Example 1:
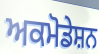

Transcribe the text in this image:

ਅਕਮੋਡੇਸ਼ਨ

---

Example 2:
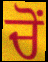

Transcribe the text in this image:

ਚੋਂ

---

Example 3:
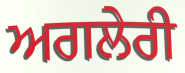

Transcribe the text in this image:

ਅਗਲੇਰੀ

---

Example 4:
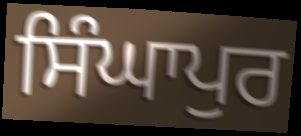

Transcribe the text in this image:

ਸਿੰਘਾਪੁਰ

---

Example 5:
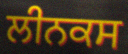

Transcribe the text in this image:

ਲੀਨਕਸ